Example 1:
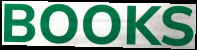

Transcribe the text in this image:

BOOKS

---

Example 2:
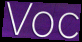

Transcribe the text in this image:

Voc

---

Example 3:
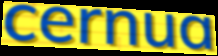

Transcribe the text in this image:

cernua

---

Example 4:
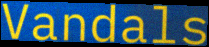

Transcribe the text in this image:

Vandals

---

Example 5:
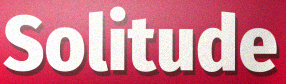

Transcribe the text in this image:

Solitude